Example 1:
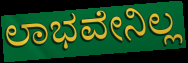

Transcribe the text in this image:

ಲಾಭವೇನಿಲ್ಲ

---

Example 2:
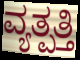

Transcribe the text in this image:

ವ್ಯತ್ಪತ್ತಿ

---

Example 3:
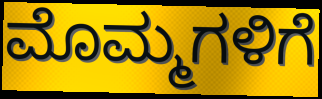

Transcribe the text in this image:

ಮೊಮ್ಮಗಳಿಗೆ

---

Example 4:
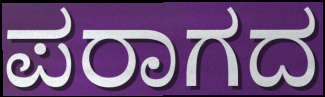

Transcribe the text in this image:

ಪರಾಗದ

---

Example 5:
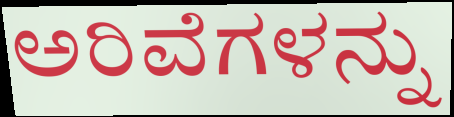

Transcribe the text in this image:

ಅರಿವೆಗಳನ್ನು